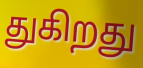
துகிறது